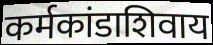
कर्मकांडाशिवाय